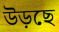
উড়ছে